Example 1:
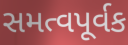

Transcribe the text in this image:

સમત્વપૂર્વક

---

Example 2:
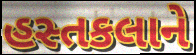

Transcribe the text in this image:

હસ્તકલાને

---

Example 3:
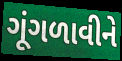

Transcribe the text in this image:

ગૂંગળાવીને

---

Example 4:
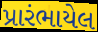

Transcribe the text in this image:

પ્રારંભાયેલ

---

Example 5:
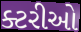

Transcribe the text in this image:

ક્ટરીઓ